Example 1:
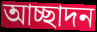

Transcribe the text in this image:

আচ্ছাদন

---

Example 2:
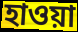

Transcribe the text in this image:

হাওয়া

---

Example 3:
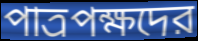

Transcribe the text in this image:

পাত্রপক্ষদের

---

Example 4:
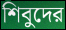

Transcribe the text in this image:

শিবুদের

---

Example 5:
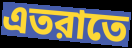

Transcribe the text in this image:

এতরাতে